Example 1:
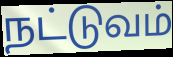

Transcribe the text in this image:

நட்டுவம்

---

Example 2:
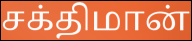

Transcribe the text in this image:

சக்திமான்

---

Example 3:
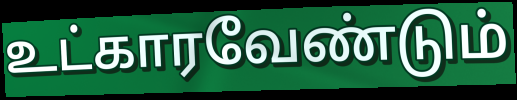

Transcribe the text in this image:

உட்காரவேண்டும்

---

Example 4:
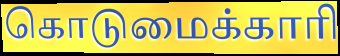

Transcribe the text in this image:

கொடுமைக்காரி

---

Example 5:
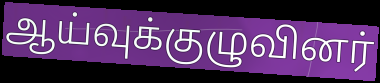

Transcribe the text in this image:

ஆய்வுக்குழுவினர்